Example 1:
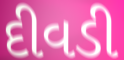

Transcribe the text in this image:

દીવડી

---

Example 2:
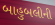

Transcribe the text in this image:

બાહુબલીની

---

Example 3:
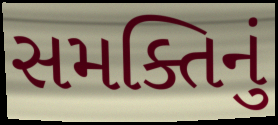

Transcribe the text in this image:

સમક્તિનું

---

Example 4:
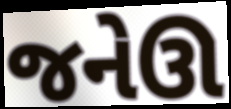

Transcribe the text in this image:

જનેઊ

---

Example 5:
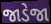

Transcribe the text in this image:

જાડેજા